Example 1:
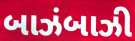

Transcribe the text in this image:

બાઝંબાઝી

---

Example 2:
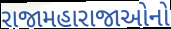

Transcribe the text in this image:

રાજામહારાજાઓનો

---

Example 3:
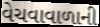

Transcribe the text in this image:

વેચવાવાળાની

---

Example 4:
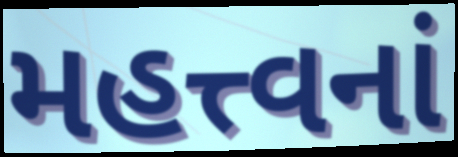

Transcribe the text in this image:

મહત્ત્વનાં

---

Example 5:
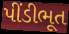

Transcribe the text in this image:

પીંડીભૂત